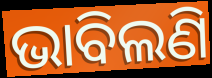
ଭାବିଲଣି